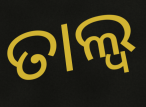
ତାଲ୍ୱ